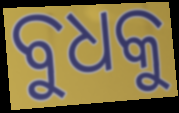
ବୁଧକୁ